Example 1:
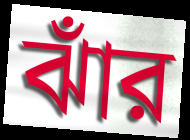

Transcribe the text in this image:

ঝাঁর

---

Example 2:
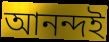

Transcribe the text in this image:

আনন্দই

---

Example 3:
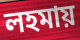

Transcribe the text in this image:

লহমায়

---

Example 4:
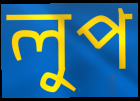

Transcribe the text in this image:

লুপ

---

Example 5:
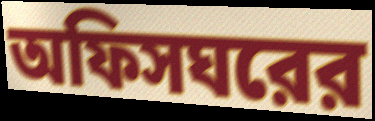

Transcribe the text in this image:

অফিসঘরের